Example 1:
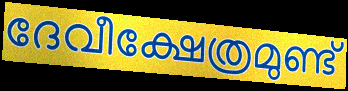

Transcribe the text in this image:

ദേവീക്ഷേത്രമുണ്ട്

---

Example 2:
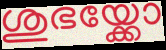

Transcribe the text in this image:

ശുഭയ്ക്കോ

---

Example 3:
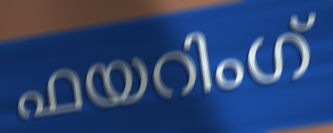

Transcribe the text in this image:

ഫയറിംഗ്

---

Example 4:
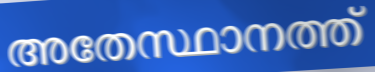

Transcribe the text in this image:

അതേസ്ഥാനത്ത്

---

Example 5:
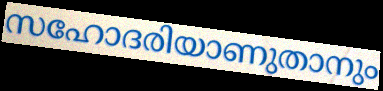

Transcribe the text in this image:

സഹോദരിയാണുതാനും